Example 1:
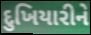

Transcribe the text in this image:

દુખિયારીને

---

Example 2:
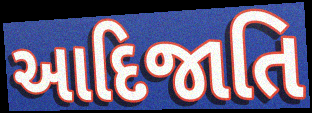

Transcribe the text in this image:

આદિજાતિ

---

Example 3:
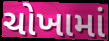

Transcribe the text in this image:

ચોખામાં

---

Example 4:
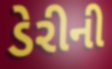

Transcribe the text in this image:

ડેરીની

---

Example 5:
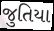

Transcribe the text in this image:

જુતિયા